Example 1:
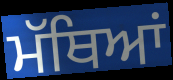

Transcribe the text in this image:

ਮੱਥਿਆਂ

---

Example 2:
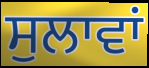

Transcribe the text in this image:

ਸੁਲਾਵਾਂ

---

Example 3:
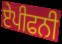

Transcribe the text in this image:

ਏਪੀਫਨੀ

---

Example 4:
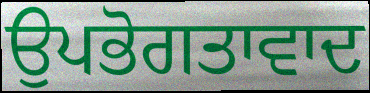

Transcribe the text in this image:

ਉਪਭੋਗਤਾਵਾਦ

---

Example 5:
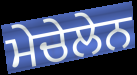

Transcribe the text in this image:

ਮੇਚੇਲੇਨ